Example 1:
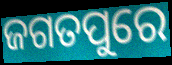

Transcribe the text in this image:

ଜଗତପୁରେ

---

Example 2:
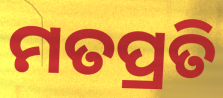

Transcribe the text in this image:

ମତପ୍ରତି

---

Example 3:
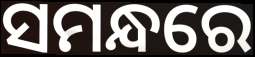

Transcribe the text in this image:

ସମନ୍ଧରେ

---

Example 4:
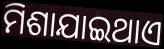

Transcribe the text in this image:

ମିଶାଯାଇଥାଏ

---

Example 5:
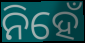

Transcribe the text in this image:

ନିହେଁ